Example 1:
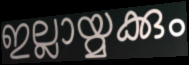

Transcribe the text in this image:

ഇല്ലായ്മക്കും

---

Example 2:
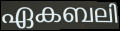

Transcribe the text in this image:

ഏകബലി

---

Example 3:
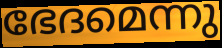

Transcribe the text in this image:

ഭേദമെന്നു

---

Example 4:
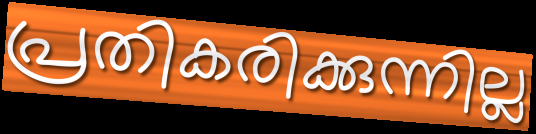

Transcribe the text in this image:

പ്രതികരിക്കുന്നില്ല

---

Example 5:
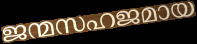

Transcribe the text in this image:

ജന്മസഹജമായ